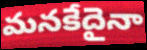
మనకేదైనా